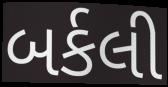
બર્કલી